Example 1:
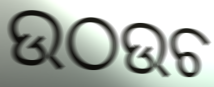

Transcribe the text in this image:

ଉଠଉଚ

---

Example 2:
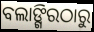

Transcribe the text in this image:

ବଲାଙ୍ଗିରଠାରୁ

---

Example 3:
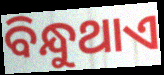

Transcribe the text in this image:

ବିନ୍ଧୁଥାଏ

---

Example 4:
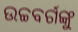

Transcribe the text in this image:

ଉଚ୍ଚବର୍ଗଙ୍କୁ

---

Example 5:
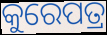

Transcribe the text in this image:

କୁରେପତ୍ର